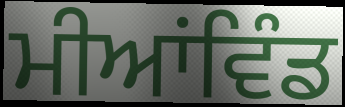
ਮੀਆਂਵਿੰਡ